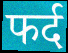
फर्द